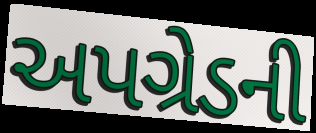
અપગ્રેડની